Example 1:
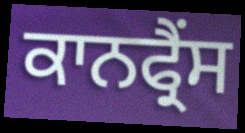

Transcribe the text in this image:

ਕਾਨਫ੍ਰੈਂਸ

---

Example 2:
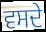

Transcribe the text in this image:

ਵਸਦੇ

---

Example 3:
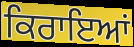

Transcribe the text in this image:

ਕਿਰਾਇਆਂ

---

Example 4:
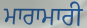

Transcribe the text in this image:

ਮਾਰਾਮਾਰੀ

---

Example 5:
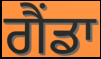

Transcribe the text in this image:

ਗੈਂਡਾ